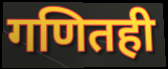
गणितही